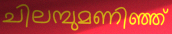
ചിലമ്പുമണിഞ്ഞ്